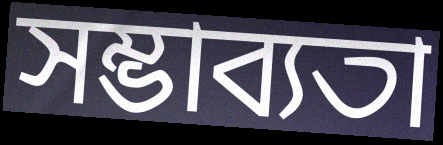
সম্ভাব্যতা